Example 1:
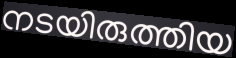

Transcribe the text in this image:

നടയിരുത്തിയ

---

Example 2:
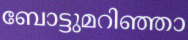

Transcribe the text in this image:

ബോട്ടുമറിഞ്ഞാ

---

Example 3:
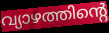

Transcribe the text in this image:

വ്യാഴത്തിന്റെ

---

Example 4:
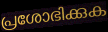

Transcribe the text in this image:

പ്രശോഭിക്കുക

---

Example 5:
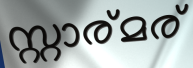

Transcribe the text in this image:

സ്റ്റാര്മര്